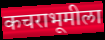
कचराभूमीला